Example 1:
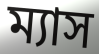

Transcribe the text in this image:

ম্যাস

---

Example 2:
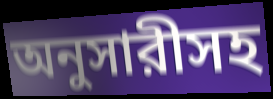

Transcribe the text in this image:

অনুসারীসহ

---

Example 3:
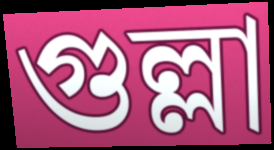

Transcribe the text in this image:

গুল্লা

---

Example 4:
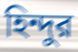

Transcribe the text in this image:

হিন্দুর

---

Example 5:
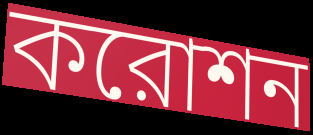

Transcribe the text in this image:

করোশন